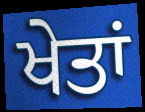
ਖੇਤਾਂ